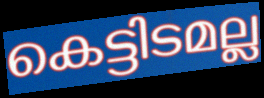
കെട്ടിടമല്ല